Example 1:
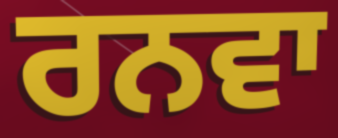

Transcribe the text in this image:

ਰਨਵਾ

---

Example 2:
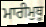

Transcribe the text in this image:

ਮਾਰੀਮੁਥੂ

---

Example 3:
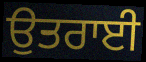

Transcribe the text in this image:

ਉਤਰਾਈ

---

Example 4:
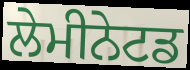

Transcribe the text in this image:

ਲੇਮੀਨੇਟਡ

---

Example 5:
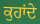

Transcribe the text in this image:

ਕੁਹਾਂਦੇ